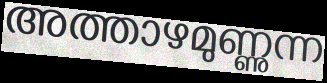
അത്താഴമുണ്ണുന്ന